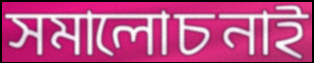
সমালোচনাই